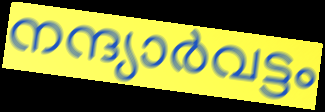
നന്ദ്യാർവട്ടം